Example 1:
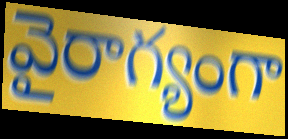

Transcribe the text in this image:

వైరాగ్యంగా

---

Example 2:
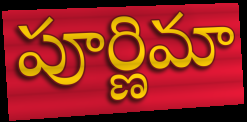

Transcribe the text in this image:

పూర్ణిమా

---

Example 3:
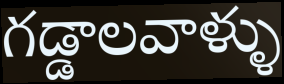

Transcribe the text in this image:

గడ్డాలవాళ్ళు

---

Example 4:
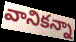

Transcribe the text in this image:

వానికన్నా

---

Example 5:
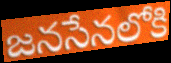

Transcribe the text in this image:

జనసేనలోకి